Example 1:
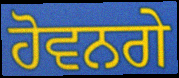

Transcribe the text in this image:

ਹੋਵਨਗੇ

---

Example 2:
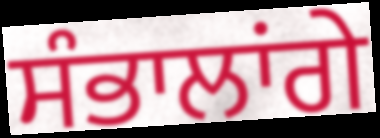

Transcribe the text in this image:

ਸੰਭਾਲਾਂਗੇ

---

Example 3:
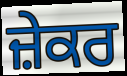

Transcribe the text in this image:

ਜ਼ੇਕਰ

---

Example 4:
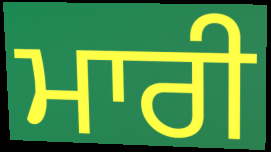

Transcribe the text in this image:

ਮਾਰੀ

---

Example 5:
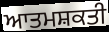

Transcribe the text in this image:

ਆਤਮਸ਼ਕਤੀ